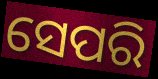
ସେପରି